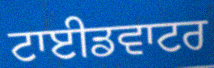
ਟਾਈਡਵਾਟਰ